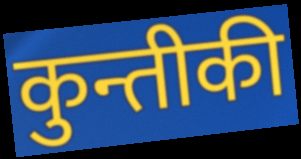
कुन्तीकी